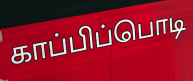
காப்பிப்பொடி